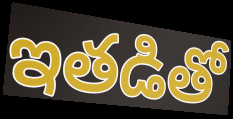
ఇతడితో